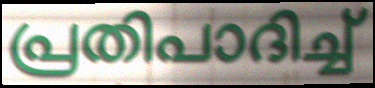
പ്രതിപാദിച്ച്